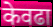
केवढा